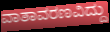
ವಾತಾವರಣವಿದ್ದು